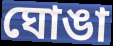
ঘোঙা